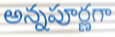
అన్నపూర్ణగా